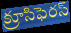
క్రూసిఫెరస్